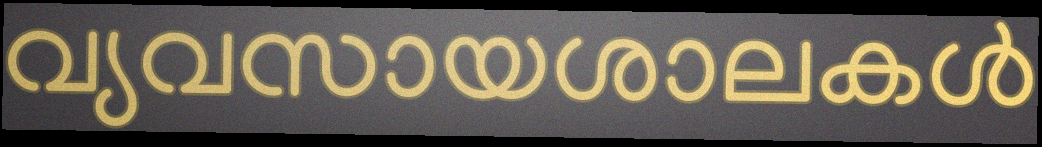
വ്യവസായശാലകൾ